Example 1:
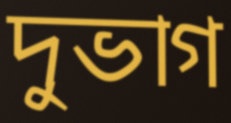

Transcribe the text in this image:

দুভাগ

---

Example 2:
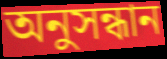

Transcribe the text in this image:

অনুসন্ধান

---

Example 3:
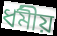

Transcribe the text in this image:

ৰ্ধমীয়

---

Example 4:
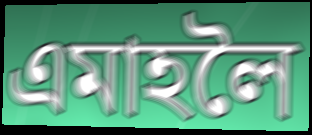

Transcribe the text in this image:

এমাহলৈ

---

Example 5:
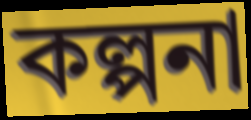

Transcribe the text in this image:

কল্পনা